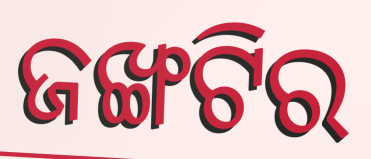
ଜଙ୍ଖଟିର